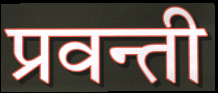
प्रवन्ती